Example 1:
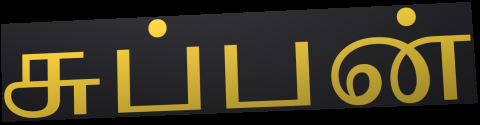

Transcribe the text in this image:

சுப்பன்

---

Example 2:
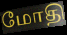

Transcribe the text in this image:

மோதி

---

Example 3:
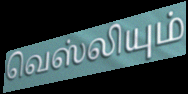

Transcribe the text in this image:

வெஸ்லியும்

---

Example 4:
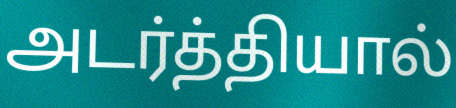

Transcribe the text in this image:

அடர்த்தியால்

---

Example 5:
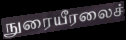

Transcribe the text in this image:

நுரையீரலைச்